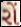
રોં